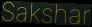
Sakshar